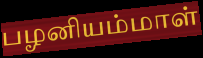
பழனியம்மாள்